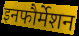
इनफौर्मेशन